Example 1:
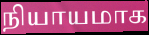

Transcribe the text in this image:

நியாயமாக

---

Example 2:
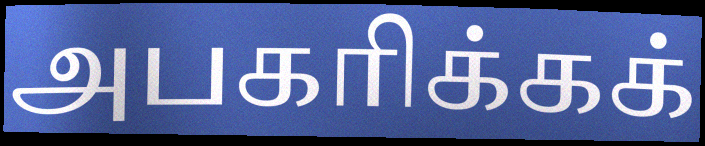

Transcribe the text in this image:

அபகரிக்கக்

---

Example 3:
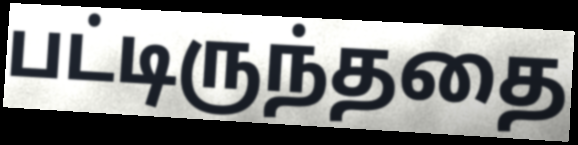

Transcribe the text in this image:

பட்டிருந்ததை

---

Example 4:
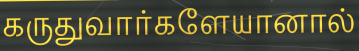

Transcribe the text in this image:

கருதுவார்களேயானால்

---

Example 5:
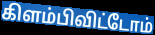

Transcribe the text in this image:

கிளம்பிவிட்டோம்